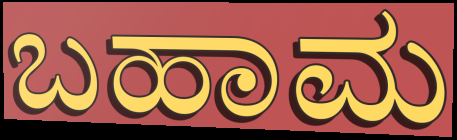
ಬಹಾಮ